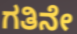
ಗತಿನೇ